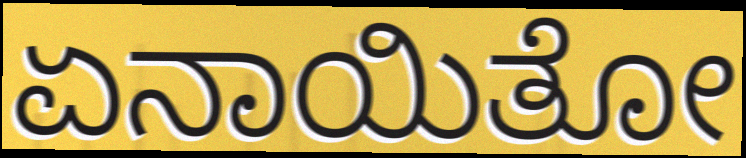
ಏನಾಯಿತೋ